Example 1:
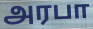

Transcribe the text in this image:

அரபா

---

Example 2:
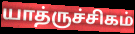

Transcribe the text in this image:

யாத்ருச்சிகம்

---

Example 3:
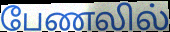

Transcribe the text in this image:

பேணலில்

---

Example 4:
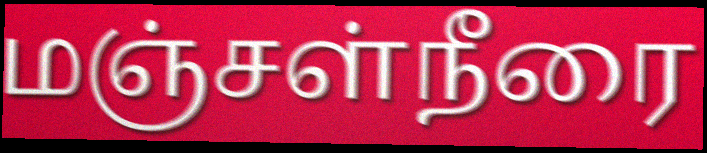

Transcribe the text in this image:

மஞ்சள்நீரை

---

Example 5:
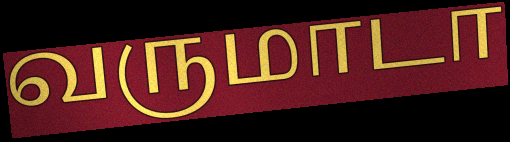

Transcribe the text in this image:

வருமாடா